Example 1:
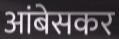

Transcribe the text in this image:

आंबेसकर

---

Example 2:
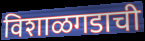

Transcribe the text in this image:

विशाळगडाची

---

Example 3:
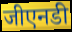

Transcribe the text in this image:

जीएनडी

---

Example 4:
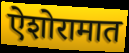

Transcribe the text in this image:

ऐशोरामात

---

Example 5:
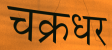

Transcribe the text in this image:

चक्रधर